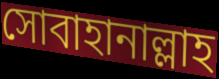
সোবাহানাল্লাহ